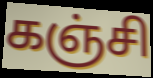
கஞ்சி